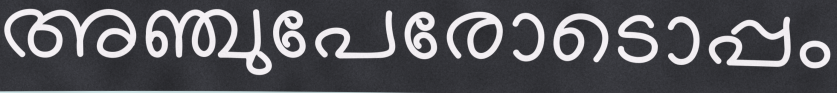
അഞ്ചുപേരോടൊപ്പം